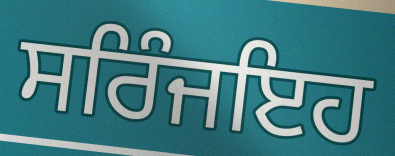
ਸਰਿੰਜਇਹ